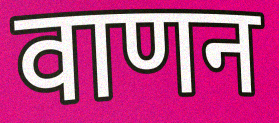
वाणन